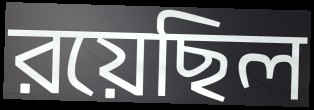
রয়েছিল